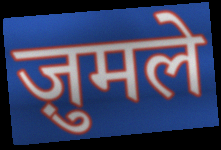
ज़ुमले